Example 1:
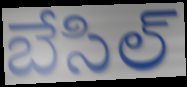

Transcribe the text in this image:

బేసిల్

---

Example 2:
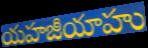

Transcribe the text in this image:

యహజీయాహు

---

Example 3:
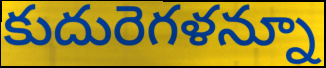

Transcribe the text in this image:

కుదురెగళన్నూ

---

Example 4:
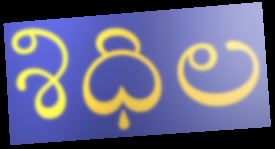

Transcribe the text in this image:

శిధిల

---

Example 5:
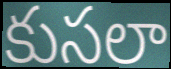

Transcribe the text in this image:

కుసలా